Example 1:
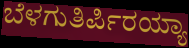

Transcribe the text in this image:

ಬೆಳಗುತಿರ್ಪಿರಯ್ಯಾ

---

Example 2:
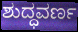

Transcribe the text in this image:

ಶುದ್ಧವರ್ಣ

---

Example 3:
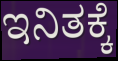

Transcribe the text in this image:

ಇನಿತಕ್ಕೆ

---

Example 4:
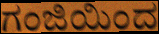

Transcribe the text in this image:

ಗಂಜಿಯಿಂದ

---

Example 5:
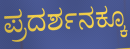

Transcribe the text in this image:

ಪ್ರದರ್ಶನಕ್ಕೂ